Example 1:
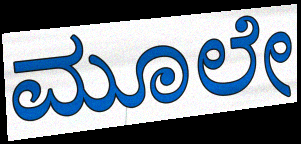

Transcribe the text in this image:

ಮೂಲೇ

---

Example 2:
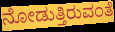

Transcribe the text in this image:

ನೋಡುತ್ತಿರುವಂತೆ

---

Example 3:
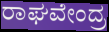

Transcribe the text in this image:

ರಾಘವೇಂದ್ರ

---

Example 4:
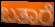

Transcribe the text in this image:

ಬತಾರೆ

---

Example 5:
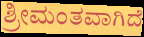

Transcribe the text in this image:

ಶ್ರೀಮಂತವಾಗಿದೆ